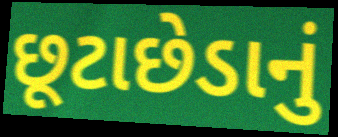
છૂટાછેડાનું